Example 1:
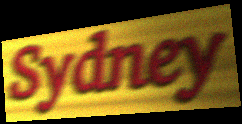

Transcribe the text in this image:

Sydney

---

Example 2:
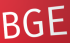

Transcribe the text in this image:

BGE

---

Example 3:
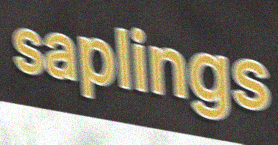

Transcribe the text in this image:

saplings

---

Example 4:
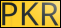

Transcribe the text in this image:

PKR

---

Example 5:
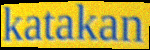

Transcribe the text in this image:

katakan